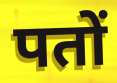
पतों